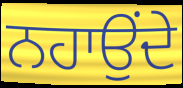
ਨਹਾਉਂਦੇ